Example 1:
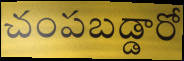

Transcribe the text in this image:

చంపబడ్డారో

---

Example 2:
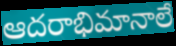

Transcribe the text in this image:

ఆదరాభిమానాలే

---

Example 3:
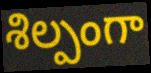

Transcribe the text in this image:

శిల్పంగా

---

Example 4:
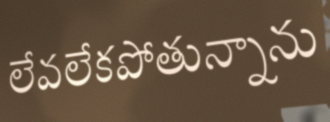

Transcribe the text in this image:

లేవలేకపోతున్నాను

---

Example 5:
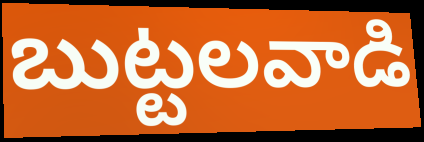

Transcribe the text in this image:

బుట్టలవాడి